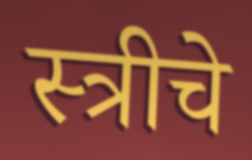
स्त्रीचे